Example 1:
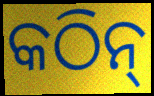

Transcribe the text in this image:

କଠିନ୍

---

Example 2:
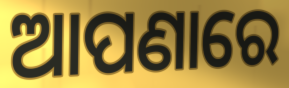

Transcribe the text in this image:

ଆପଣାରେ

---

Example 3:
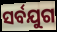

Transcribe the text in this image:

ସର୍ବଯୁଗ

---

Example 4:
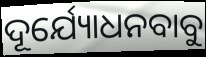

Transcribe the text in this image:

ଦୂର୍ଯ୍ୟୋଧନବାବୁ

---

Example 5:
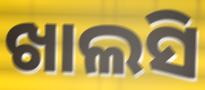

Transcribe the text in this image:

ଖାଲସି